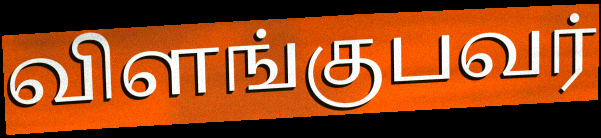
விளங்குபவர்